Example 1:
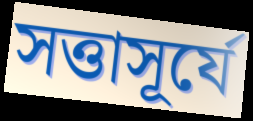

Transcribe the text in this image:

সত্তাসূর্যে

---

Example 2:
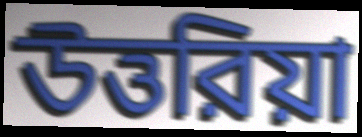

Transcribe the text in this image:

উত্তরিয়া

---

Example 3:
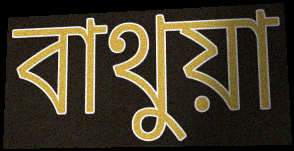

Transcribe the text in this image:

বাথুয়া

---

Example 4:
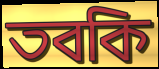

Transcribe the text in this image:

তবকি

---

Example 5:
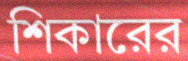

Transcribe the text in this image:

শিকারের